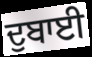
ਦੁਬਾਈ